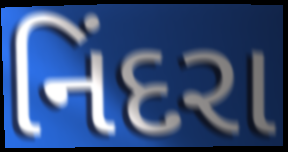
નિંદરા